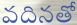
వదినతో